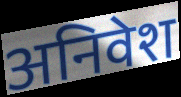
अनिवेश